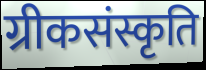
ग्रीकसंस्कृति